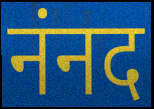
नंनद